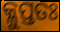
କ୍ଳୁପ୍ତତଃ